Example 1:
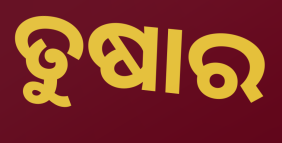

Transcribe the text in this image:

ତୁଷାର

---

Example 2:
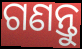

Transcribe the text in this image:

ଗଣନ୍ତୁ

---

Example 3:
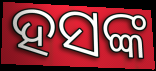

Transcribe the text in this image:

ହସଙ୍କ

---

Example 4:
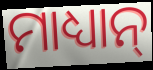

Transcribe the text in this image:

ମାଧ୍ୟାନ୍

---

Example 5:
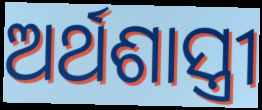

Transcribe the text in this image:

ଅର୍ଥଶାସ୍ତ୍ରୀ